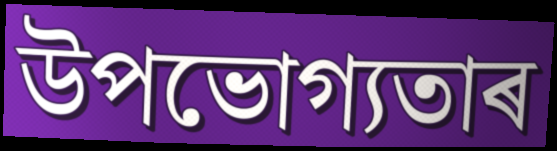
উপভোগ্যতাৰ